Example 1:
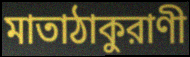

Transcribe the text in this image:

মাতাঠাকুরাণী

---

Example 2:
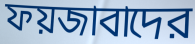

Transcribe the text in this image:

ফয়জাবাদের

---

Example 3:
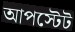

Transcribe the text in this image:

আপস্টেট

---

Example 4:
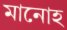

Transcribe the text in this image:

মানোহ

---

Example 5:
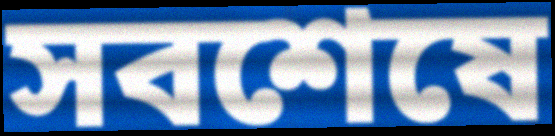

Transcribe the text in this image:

সবশেষে